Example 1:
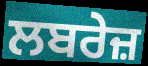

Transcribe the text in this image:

ਲਬਰੇਜ਼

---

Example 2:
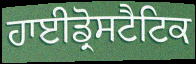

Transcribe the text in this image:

ਹਾਈਡ੍ਰੋਸਟੈਟਿਕ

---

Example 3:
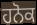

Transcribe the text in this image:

ਹਨੋਕ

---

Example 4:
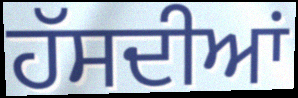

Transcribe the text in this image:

ਹੱਸਦੀਆਂ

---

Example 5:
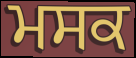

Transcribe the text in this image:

ਮਸਕ